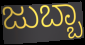
ಜುಬ್ಬಾ